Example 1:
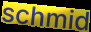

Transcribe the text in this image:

schmid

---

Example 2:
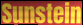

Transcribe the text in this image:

Sunstein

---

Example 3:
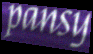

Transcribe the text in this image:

pansy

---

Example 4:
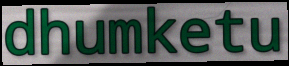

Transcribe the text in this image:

dhumketu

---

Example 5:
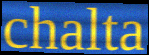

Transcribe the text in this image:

chalta